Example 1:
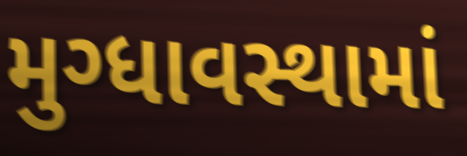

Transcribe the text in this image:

મુગ્ધાવસ્થામાં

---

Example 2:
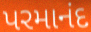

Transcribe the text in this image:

પરમાનંદ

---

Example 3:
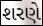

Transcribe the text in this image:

શરણે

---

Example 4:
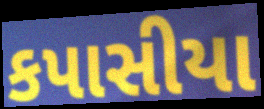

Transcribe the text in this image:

કપાસીયા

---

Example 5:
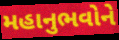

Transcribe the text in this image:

મહાનુભવોને